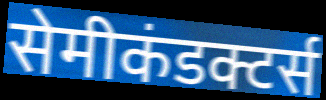
सेमीकंडक्टर्स